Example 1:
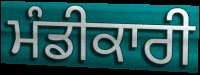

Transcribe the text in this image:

ਮੰਡੀਕਾਰੀ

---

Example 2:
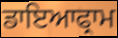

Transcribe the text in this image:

ਡਾਇਆਫ੍ਰਾਮ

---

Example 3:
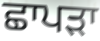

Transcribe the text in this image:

ਛਾਪੜਾ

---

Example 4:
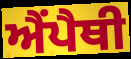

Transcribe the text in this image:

ਐਂਪੈਥੀ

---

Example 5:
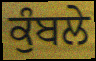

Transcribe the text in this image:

ਕੁੰਬਲੇ